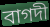
বাগদী